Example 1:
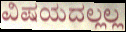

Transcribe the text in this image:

ವಿಷಯದಲ್ಲಲ್ಲ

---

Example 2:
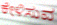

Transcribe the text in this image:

ಕೇಳಿಸುವ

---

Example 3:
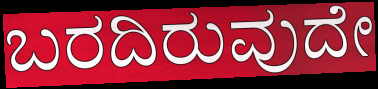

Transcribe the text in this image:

ಬರದಿರುವುದೇ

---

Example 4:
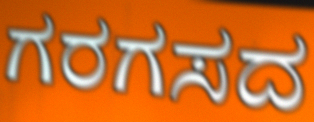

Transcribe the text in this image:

ಗರಗಸದ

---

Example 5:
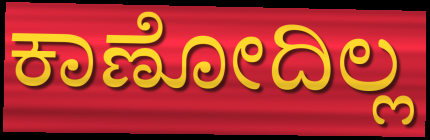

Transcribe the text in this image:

ಕಾಣೋದಿಲ್ಲ